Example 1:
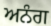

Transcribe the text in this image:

ਅਨੰਗ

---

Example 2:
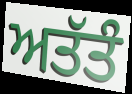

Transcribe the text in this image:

ਅਤੱਤੰ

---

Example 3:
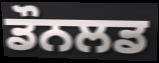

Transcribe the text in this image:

ਡੌਨਲਡ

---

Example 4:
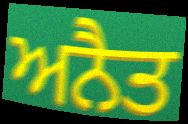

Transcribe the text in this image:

ਅਨੈਤ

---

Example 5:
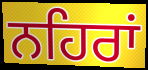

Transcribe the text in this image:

ਨਹਿਰਾਂ